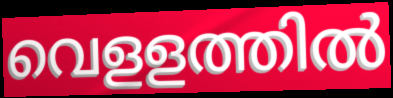
വെളളത്തിൽ